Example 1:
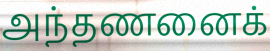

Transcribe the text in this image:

அந்தணனைக்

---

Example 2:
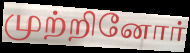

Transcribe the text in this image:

முற்றினோர்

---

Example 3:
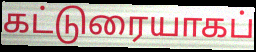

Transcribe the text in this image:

கட்டுரையாகப்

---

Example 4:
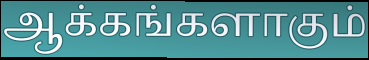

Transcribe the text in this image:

ஆக்கங்களாகும்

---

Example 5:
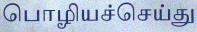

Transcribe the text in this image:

பொழியச்செய்து